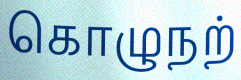
கொழுநற்